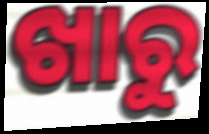
ଖାରୁ